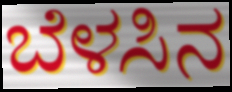
ಬೆಳಸಿನ